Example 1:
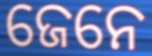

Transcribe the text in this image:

ଜେନେ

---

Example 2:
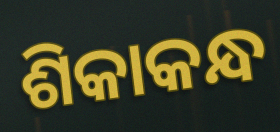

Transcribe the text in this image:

ଶିକାକନ୍ଧ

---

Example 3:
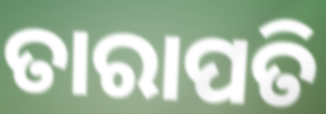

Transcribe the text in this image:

ତାରାପତି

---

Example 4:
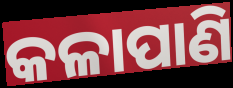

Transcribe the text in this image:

କଳାପାଣି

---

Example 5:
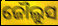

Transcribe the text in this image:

ଜୌଲୁସ